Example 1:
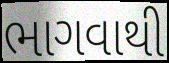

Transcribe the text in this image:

ભાગવાથી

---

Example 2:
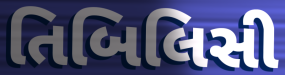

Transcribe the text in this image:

તિબિલિસી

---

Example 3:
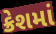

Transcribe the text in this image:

ક્રેશમાં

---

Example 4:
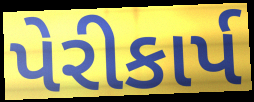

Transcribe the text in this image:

પેરીકાર્પ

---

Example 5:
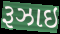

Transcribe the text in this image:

રૂઝાઇ